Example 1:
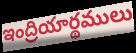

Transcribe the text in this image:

ఇంద్రియార్థములు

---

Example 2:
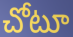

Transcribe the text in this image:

చోటూ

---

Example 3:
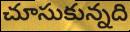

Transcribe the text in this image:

చూసుకున్నది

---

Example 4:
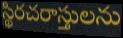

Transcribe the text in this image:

స్థిరచరాస్తులను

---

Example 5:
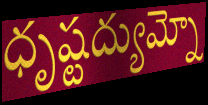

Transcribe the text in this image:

ధృష్టద్యుమ్నో